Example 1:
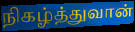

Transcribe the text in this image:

நிகழ்த்துவான்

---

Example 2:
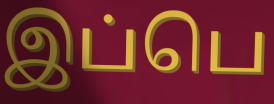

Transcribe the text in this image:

இப்பெ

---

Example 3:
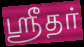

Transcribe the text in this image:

ஸ்ரீதர்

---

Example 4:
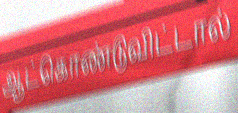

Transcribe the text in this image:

ஆட்கொண்டுவிட்டால்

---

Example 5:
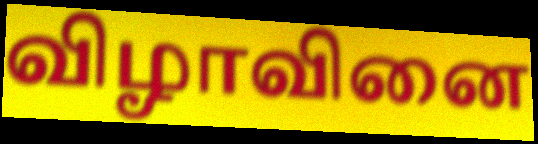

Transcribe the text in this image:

விழாவினை